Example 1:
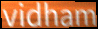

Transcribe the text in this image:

vidham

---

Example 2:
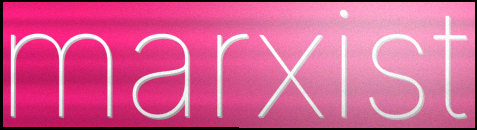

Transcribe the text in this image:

marxist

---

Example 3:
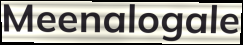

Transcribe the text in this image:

Meenalogale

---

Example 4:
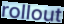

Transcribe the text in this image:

rollout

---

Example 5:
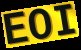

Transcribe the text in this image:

EOI